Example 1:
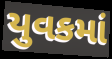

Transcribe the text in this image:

યુવકમાં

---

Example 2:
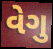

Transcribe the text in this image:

વેગુ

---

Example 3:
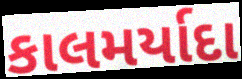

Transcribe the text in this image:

કાલમર્યાદા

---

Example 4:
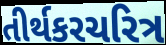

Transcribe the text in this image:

તીર્થકરચરિત્ર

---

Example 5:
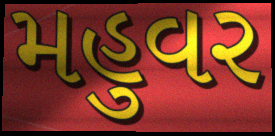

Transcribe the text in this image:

મહુવર